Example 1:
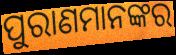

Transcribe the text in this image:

ପୁରାଣମାନଙ୍କର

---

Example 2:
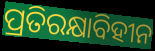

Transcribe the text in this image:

ପ୍ରତିରକ୍ଷାବିହୀନ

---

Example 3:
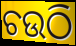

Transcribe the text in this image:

ଚଉଠି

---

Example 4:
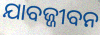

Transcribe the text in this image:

ଯାବଜ୍ଜୀବନ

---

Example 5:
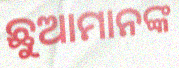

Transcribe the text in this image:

ଛୁଆମାନଙ୍କ